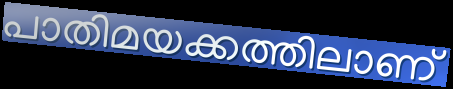
പാതിമയക്കത്തിലാണ്